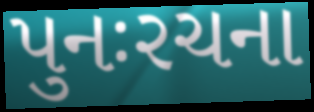
પુનઃરચના